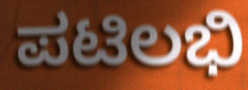
ಪಟಿಲಭಿ